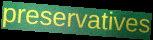
preservatives